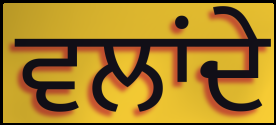
ਵਲਾਂਦੇ